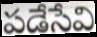
పడేసేవి